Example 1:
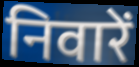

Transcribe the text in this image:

निवारें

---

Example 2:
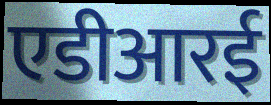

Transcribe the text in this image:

एडीआरई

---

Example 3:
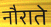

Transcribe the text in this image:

नौराते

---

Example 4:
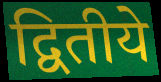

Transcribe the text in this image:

द्वितीये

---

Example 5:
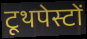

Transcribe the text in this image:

टूथपेस्टों